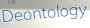
Deontology